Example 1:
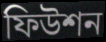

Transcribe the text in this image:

ফিউশন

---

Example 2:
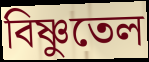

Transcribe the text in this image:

বিষ্ণুতেল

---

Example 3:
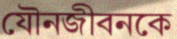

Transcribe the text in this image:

যৌনজীবনকে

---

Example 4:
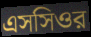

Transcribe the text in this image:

এসসিওর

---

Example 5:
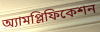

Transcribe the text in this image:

অ্যামপ্লিফিকেশন